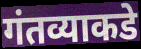
गंतव्याकडे